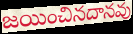
జయించినదానవు